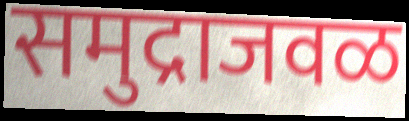
समुद्राजवळ